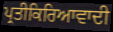
ਪ੍ਰਤੀਕਿਰਿਆਵਾਦੀ